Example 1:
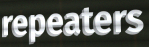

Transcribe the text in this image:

repeaters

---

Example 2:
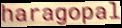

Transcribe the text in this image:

haragopal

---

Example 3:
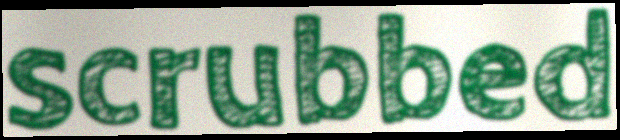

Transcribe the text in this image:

scrubbed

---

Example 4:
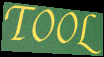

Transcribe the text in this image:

TOOL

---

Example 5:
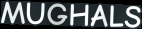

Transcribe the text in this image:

MUGHALS